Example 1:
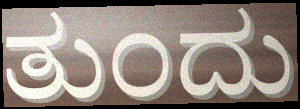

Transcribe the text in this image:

ತುಂದು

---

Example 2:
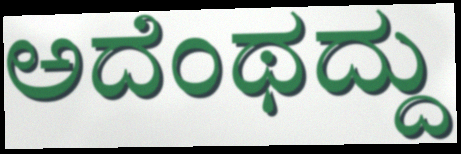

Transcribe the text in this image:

ಅದೆಂಥದ್ದು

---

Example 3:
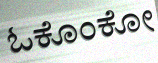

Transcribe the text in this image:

ಓಕೊಂಕೋ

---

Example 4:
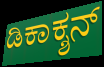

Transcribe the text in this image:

ಡಿಕಾಕ್ಶನ್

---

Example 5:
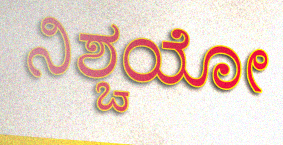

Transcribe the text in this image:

ನಿಶ್ಚಯೋ